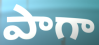
పాగా